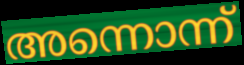
അന്നൊന്ന്